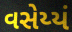
વસેય્યં